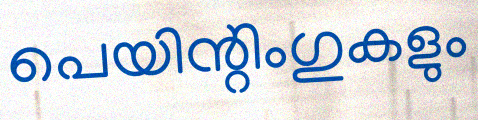
പെയിന്റിംഗുകളും